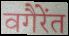
वगैरेंत